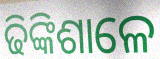
ଢିଙ୍କିଶାଳେ